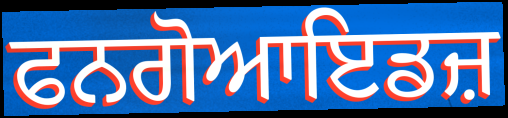
ਫਨਗੋਆਇਡਜ਼